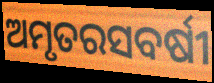
ଅମୃତରସବର୍ଷୀ